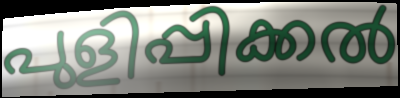
പുളിപ്പിക്കൽ